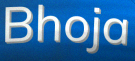
Bhoja